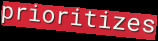
prioritizes